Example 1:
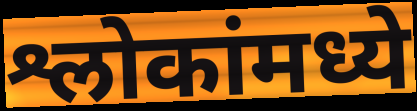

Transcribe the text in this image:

श्लोकांमध्ये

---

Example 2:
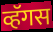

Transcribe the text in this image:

व्हॅगस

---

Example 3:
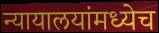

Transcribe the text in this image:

न्यायालयांमध्येच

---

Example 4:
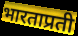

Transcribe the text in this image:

भारताप्रती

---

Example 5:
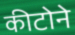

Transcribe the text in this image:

कीटोने